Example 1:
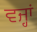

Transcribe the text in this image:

ਵਜ੍ਹਾਂ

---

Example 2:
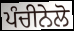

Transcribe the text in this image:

ਪੰਚੀਨੇਲੋ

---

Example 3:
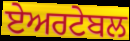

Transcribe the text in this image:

ਏਅਰਟੇਬਲ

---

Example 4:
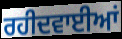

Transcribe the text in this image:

ਰਹੀਦਵਾਈਆਂ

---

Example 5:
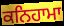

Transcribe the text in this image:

ਕਨਿਹਾਮਾ